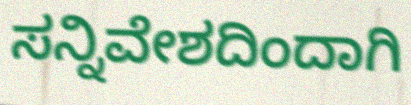
ಸನ್ನಿವೇಶದಿಂದಾಗಿ